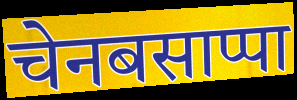
चेनबसाप्पा